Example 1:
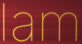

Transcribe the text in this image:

Iam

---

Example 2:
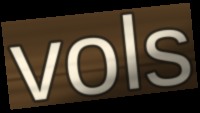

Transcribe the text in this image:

vols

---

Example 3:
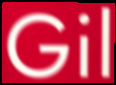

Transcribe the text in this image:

Gil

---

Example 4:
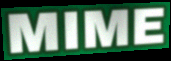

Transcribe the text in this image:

MIME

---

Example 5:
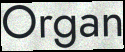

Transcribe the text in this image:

Organ